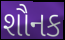
શૌનક